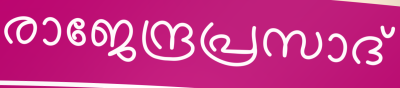
രാജേന്ദ്രപ്രസാദ്